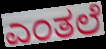
ಎಂತಲೆ